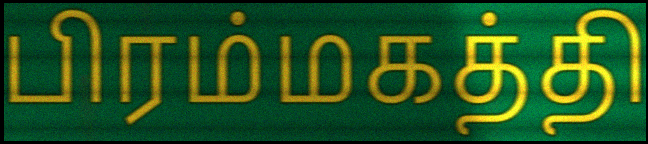
பிரம்மகத்தி